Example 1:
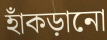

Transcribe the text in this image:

হাঁকড়ানো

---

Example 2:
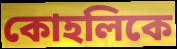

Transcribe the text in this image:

কোহলিকে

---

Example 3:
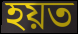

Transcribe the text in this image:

হয়ত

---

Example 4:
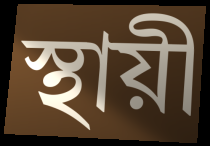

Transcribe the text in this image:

স্থায়ী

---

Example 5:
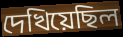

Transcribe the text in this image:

দেখিয়েছিল